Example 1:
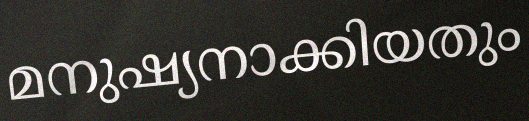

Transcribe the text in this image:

മനുഷ്യനാക്കിയതും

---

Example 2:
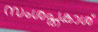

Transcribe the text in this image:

സംശപ്തകാശ്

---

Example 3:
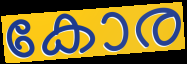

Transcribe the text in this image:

കോര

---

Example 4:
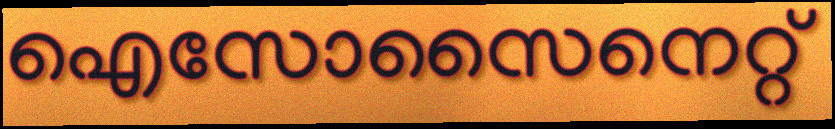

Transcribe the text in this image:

ഐസോസൈനെറ്റ്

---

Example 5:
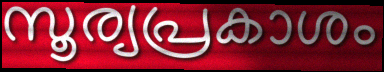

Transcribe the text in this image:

സൂര്യപ്രകാശം